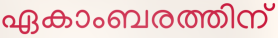
ഏകാംബരത്തിന്